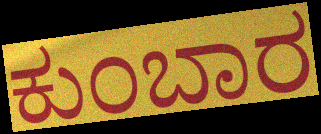
ಕುಂಬಾರ